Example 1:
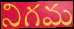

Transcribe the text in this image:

నిగమ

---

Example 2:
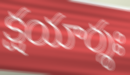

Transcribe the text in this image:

క్షయార్శః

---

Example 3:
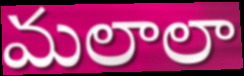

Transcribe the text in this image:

మలాలా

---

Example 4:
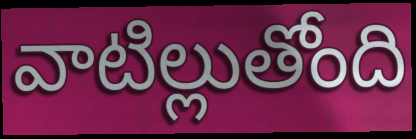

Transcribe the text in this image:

వాటిల్లుతోంది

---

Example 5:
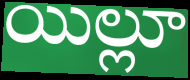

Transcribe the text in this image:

యిల్లూ